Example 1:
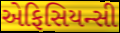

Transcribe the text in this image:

એફિસિયન્સી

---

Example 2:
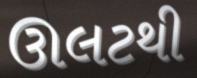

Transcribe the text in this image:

ઊલટથી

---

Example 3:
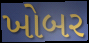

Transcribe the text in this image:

ખોબર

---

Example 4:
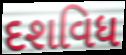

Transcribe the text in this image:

દશવિધ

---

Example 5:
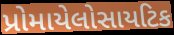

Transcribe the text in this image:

પ્રોમાયેલોસાયટિક